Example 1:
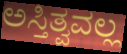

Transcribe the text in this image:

ಅಸ್ತಿತ್ವವಲ್ಲ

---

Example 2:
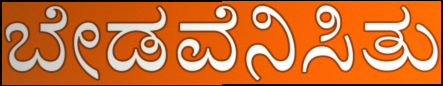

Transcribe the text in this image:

ಬೇಡವೆನಿಸಿತು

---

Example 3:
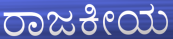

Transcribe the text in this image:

ರಾಜಕೀಯ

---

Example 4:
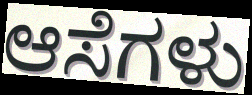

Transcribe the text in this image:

ಆಸೆಗಳು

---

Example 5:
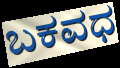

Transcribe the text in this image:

ಬಕವಧ